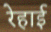
रेहाई